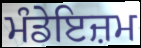
ਮੰਡੇਇਜ਼ਮ